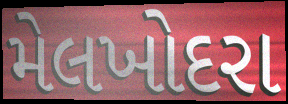
મેલખોદરા